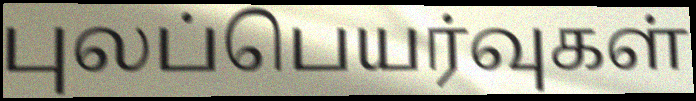
புலப்பெயர்வுகள்